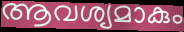
ആവശ്യമാകും